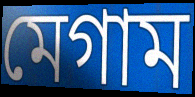
মেগাম